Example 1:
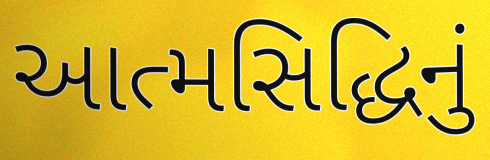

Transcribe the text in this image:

આત્મસિદ્ધિનું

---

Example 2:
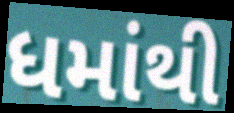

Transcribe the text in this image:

ધમાંથી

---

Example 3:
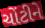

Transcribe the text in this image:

ચોંટીને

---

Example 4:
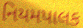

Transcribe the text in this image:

નિયમપાલક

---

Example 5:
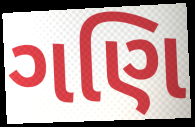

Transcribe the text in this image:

ગણિ